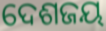
ଦେଶଜୟ